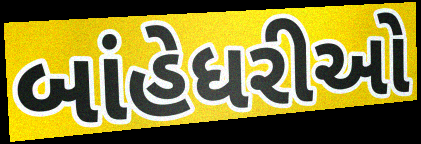
બાંહેધરીઓ